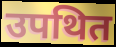
उपथित